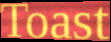
Toast